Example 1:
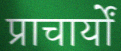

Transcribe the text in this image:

प्राचार्यों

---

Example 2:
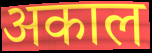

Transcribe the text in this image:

अकाल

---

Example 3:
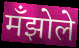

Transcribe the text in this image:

मँझोले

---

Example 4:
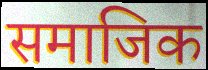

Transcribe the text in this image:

समाजिक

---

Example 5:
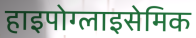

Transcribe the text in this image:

हाइपोग्लाइसेमिक